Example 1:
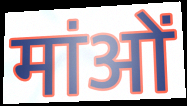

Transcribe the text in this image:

मांओं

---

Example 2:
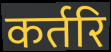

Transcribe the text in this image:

कर्तरि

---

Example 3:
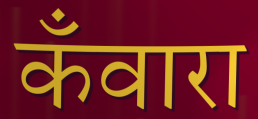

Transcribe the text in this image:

कँवारा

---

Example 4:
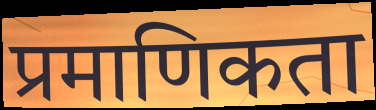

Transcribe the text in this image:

प्रमाणिकता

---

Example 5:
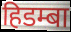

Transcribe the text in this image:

हिडम्बा